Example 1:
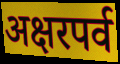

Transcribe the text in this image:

अक्षरपर्व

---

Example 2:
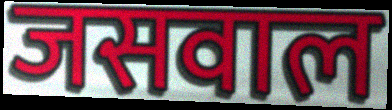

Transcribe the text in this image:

जसवाल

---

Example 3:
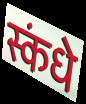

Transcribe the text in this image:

स्कंधे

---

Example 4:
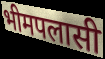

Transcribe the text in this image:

भीमपलासी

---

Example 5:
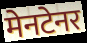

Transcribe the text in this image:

मेनटेनर